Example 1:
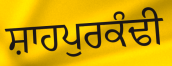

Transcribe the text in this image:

ਸ਼ਾਹਪੁਰਕੰਢੀ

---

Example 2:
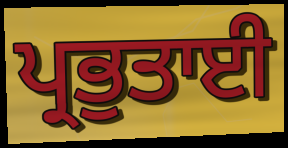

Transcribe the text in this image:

ਪ੍ਰਭੁਤਾਈ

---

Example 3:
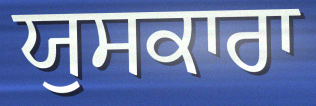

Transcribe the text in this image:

ਯੁਸਕਾਰਾ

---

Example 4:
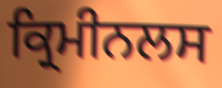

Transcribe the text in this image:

ਕ੍ਰਿਮੀਨਲਸ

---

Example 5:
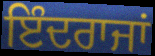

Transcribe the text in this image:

ਇੰਦਰਾਜਾਂ